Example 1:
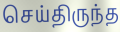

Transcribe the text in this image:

செய்திருந்த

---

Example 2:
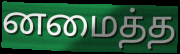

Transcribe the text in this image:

னமைத்த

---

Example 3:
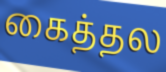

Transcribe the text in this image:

கைத்தல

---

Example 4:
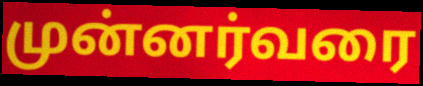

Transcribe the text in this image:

முன்னர்வரை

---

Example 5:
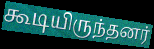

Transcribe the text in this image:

கூடியிருந்தனர்